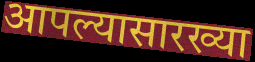
आपल्यासारख्या